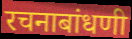
रचनाबांधणी